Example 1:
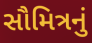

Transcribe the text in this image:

સૌમિત્રનું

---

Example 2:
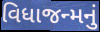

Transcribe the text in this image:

વિધાજન્મનું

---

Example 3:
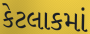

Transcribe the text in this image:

કેટલાકમાં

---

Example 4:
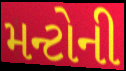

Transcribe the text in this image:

મન્ટોની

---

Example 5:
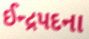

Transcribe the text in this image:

ઈન્દ્રપદના